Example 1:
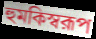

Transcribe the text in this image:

হুমকিস্বরূপ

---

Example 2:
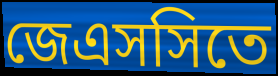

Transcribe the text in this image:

জেএসসিতে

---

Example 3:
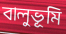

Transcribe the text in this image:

বালুভূমি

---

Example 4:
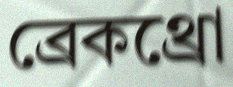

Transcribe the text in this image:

ব্রেকথ্রো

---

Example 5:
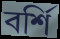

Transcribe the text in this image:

বর্শি